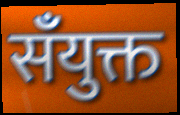
सँयुक्त